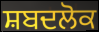
ਸ਼ਬਦਲੋਕ